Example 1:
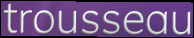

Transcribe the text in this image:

trousseau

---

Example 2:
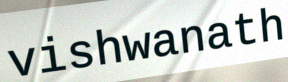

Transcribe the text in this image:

vishwanath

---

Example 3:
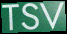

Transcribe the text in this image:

TSV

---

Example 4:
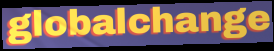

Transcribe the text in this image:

globalchange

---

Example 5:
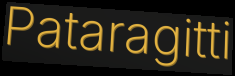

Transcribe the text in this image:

Pataragitti